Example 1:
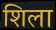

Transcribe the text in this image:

शिला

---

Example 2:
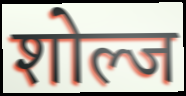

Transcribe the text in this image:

शोल्ज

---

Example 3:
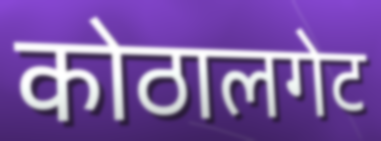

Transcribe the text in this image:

कोठालगेट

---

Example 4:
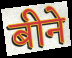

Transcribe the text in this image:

बीने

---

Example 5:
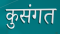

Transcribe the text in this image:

कुसंगत